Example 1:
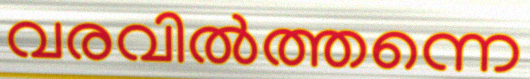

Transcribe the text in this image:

വരവിൽത്തന്നെ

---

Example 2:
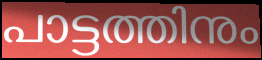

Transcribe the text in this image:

പാട്ടത്തിനും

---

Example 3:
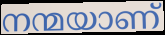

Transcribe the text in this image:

നന്മയാണ്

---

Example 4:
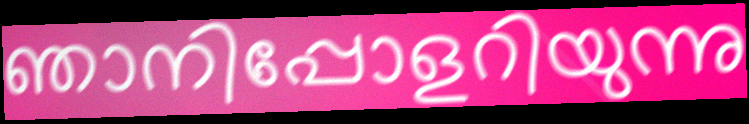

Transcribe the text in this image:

ഞാനിപ്പോളറിയുന്നു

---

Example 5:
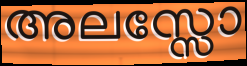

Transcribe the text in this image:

അലസ്സോ